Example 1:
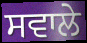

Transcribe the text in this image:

ਸਵਾਲੇ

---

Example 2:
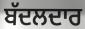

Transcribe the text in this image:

ਬੱਦਲਦਾਰ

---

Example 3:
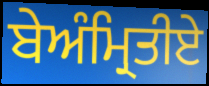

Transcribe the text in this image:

ਬੇਅੰਮ੍ਰਿਤੀਏ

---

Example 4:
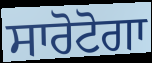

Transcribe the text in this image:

ਸਾਰੋਟੋਗਾ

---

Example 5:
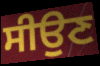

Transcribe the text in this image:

ਸੀਉਣ